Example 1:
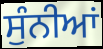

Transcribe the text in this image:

ਸੁੰਨੀਆਂ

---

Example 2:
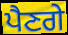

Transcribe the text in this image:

ਪੈਣਗੇ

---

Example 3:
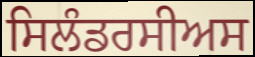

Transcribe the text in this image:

ਸਿਲੰਡਰਸੀਅਸ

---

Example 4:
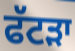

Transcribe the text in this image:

ਫੱਟੜਾ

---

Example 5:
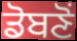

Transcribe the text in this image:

ਡੋਬਣੋਂ